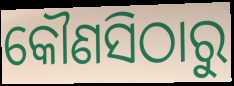
କୌଣସିଠାରୁ